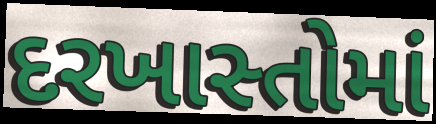
દરખાસ્તોમાં